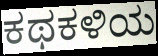
ಕಥಕಳಿಯ